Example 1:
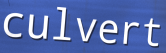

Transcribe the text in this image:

culvert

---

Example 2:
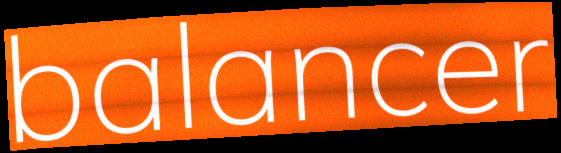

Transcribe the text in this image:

balancer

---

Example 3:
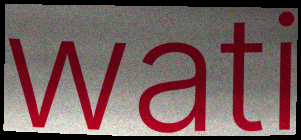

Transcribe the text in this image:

wati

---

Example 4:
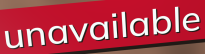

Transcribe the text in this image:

unavailable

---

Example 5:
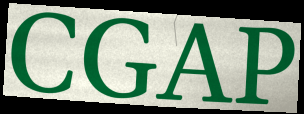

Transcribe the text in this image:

CGAP